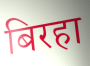
बिरहा